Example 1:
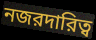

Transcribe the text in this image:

নজরদারিত্ব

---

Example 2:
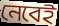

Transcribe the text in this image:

নেবেই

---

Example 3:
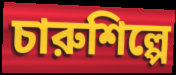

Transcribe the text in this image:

চারুশিল্পে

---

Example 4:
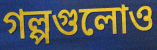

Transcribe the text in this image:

গল্পগুলোও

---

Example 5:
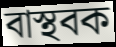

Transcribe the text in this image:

বাস্থবক